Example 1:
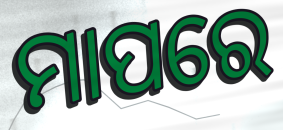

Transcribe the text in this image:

ମାପରେ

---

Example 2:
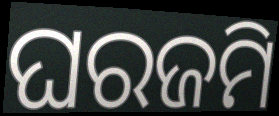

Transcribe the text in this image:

ଘରଜମି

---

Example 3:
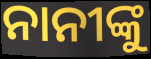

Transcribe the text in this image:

ନାନୀଙ୍କୁ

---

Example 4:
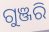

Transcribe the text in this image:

ଗୁଞ୍ଜରି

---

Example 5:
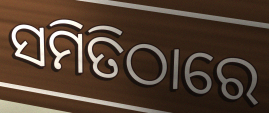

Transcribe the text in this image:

ସମିତିଠାରେ